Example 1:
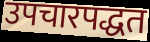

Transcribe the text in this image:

उपचारपद्धत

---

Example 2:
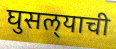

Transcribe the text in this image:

घुसल्याची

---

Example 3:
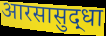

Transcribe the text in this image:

आरसासुद्धा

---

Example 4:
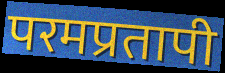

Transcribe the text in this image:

परमप्रतापी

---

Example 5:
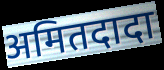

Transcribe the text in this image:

अमितदादा